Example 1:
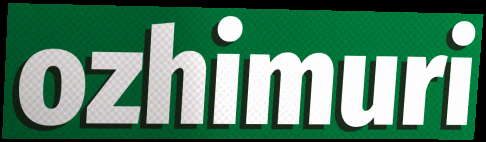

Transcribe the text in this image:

ozhimuri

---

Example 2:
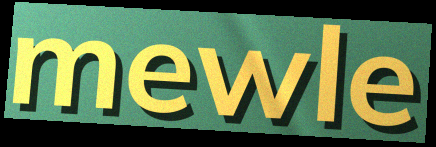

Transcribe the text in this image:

mewle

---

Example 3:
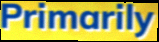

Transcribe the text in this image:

Primarily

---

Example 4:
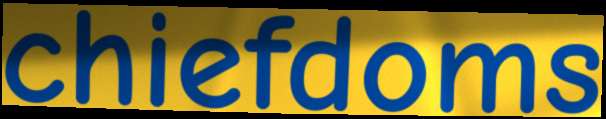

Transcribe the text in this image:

chiefdoms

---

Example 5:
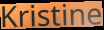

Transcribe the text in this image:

Kristine